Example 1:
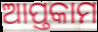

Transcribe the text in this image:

ଆପ୍ତକାମ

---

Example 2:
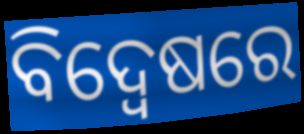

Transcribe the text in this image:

ବିଦ୍ଵେଷରେ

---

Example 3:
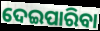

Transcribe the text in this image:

ଦେଇପାରିବା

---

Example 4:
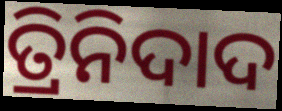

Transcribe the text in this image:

ତ୍ରିନିଦାଦ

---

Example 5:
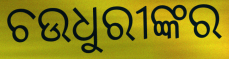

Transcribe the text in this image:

ଚଉଧୁରୀଙ୍କର